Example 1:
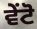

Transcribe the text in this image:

ਵੇਂਟੋ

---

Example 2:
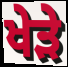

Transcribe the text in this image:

ਖੇੜੇ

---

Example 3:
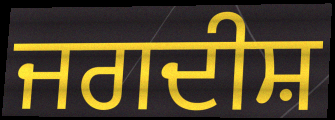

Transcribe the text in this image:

ਜਗਦੀਸ਼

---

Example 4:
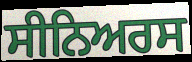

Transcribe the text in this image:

ਸੀਨਿਅਰਸ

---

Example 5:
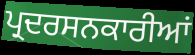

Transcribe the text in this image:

ਪ੍ਰਦਰਸਨਕਾਰੀਆਂ